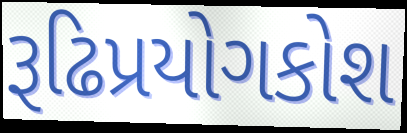
રૂઢિપ્રયોગકોશ